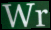
Wr